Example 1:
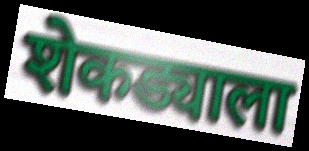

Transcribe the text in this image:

शेकड्याला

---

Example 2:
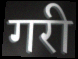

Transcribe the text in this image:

गरी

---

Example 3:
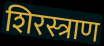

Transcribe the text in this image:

शिरस्त्राण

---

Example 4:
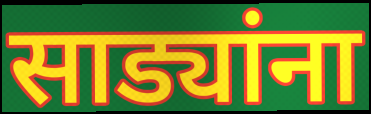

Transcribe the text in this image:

साड्यांना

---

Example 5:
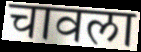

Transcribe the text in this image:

चावला